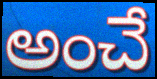
అంచే